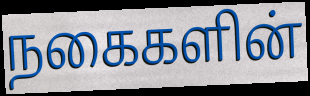
நகைகளின்